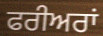
ਫਰੀਅਰਾਂ